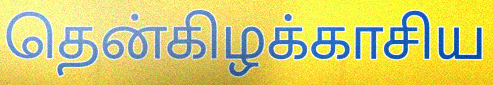
தென்கிழக்காசிய